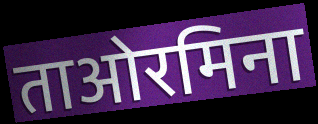
ताओरमिना